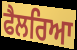
ਫੈਲਰਿਆ